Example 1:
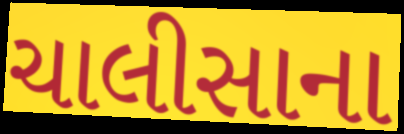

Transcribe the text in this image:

ચાલીસાના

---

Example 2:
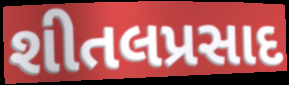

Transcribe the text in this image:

શીતલપ્રસાદ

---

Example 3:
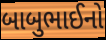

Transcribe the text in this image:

બાબુભાઈનો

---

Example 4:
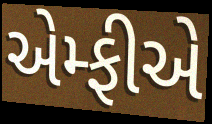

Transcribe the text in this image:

એમ્ફીએ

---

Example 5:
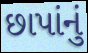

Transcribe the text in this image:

છાપાંનું